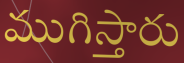
ముగిస్తారు